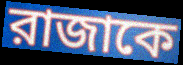
রাজাকে